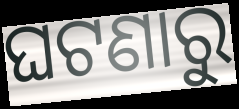
ଘଟଣାରୁ